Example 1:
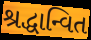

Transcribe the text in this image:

શ્રદ્ધાન્વિત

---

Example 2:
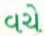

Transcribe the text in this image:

વચે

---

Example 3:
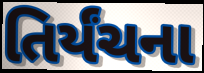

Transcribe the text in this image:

તિર્યંચના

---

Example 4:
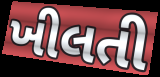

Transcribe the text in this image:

ખીલતી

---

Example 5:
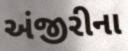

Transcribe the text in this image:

અંજીરીના